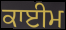
ਕਾਈਮ